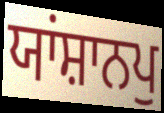
ਯਾਂਸ਼ਾਨਪੁ